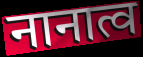
नानात्व